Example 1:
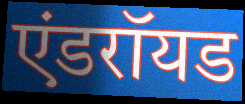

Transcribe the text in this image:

एंडरॉयड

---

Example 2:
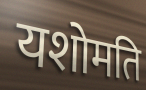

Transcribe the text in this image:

यशोमति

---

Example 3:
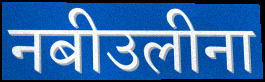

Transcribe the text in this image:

नबीउलीना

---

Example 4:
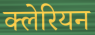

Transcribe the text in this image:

क्लेरियन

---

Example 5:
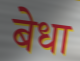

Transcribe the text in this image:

बेधा